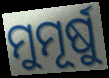
ମୁମୂର୍ଷୁ